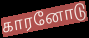
காரனோடு